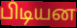
பிடியன